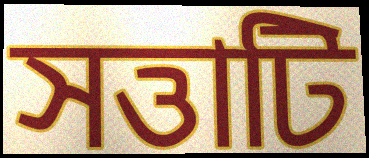
সত্তাটি